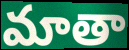
మాతా